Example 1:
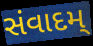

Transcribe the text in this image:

સંવાદમ્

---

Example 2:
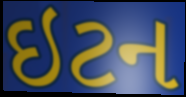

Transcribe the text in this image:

ઇટન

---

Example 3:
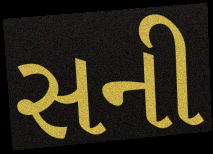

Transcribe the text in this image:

સની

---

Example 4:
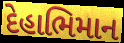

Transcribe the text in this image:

દેહાભિમાન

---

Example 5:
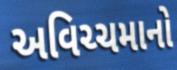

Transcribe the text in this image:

અવિચ્ચમાનો